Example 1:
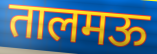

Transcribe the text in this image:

तालमऊ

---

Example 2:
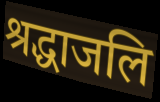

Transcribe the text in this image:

श्रद्धाजलि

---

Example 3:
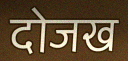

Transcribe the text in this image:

दोजख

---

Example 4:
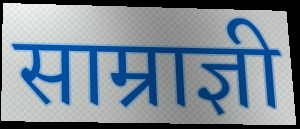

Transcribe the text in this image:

साम्राज्ञी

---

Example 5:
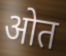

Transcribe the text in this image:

ओत